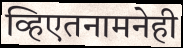
व्हिएतनामनेही